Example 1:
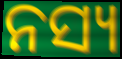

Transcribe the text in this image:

ନସ୍ୟ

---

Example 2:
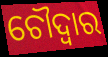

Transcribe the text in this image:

ଚୌଦ୍ଵାର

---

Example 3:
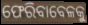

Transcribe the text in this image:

ଫେରିବାବେଳକୁ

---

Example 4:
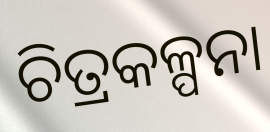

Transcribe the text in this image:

ଚିତ୍ରକଳ୍ପନା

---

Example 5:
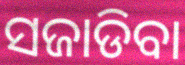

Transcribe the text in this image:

ସଜାଡିବା